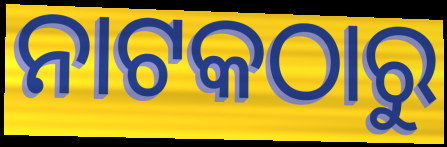
ନାଟକଠାରୁ